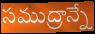
సముద్రాన్నే